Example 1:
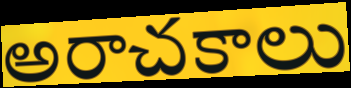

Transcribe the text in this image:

అరాచకాలు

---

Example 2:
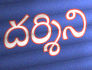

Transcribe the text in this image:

దర్శిని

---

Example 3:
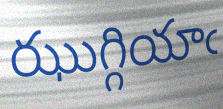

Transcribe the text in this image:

ఝుగ్గియాఁ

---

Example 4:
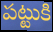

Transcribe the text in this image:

పట్టుకి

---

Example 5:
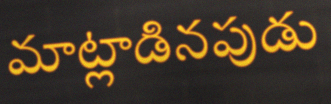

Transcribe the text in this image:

మాట్లాడినపుడు